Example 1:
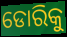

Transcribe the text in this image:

ଡୋରିକୁ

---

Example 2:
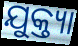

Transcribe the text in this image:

ଯୁକ୍ତ୍ୟା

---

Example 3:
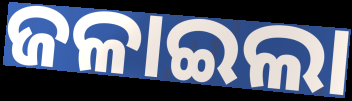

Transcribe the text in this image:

ଜଳାଇଲା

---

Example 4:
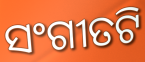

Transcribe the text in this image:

ସଂଗୀତଟି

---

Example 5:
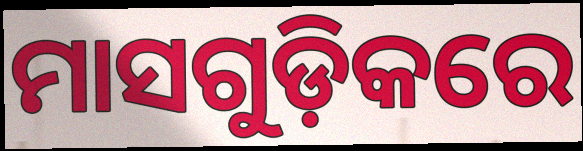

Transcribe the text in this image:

ମାସଗୁଡ଼ିକରେ